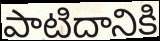
పాటిదానికి